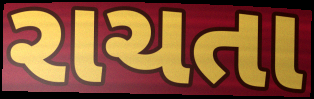
રાચતા